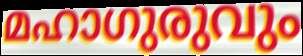
മഹാഗുരുവും